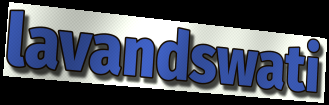
lavandswati